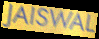
JAISWAL